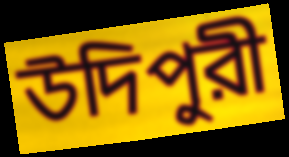
উদিপুরী